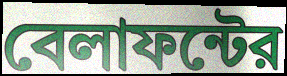
বেলাফন্টের